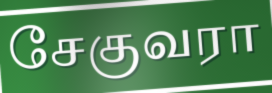
சேகுவரா